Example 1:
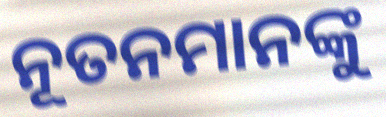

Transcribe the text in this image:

ନୂତନମାନଙ୍କୁ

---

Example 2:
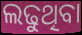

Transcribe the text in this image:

ଲଢୁଥିବା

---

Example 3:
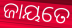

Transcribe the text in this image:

ଜାୟତେ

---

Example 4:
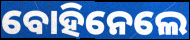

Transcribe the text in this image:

ବୋହିନେଲେ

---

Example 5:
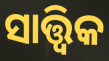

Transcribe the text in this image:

ସାତ୍ତ୍ବିକ